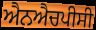
ਐਨਐਚਪੀਸੀ